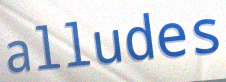
alludes